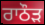
ਰਾਠੌੜ